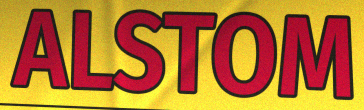
ALSTOM